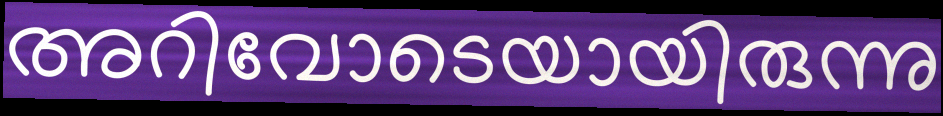
അറിവോടെയായിരുന്നു